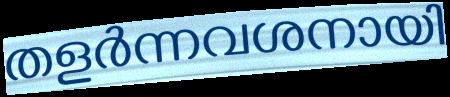
തളർന്നവശനായി